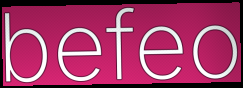
befeo